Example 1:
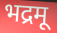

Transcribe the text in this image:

भद्रमू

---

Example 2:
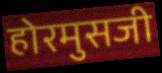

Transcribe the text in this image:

होरमुसजी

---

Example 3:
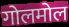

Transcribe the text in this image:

गोलमोल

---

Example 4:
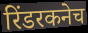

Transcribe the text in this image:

रिंडरकनेच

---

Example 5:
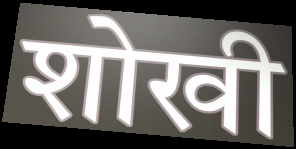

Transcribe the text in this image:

शोखी